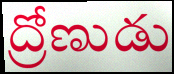
ద్రోణుడు